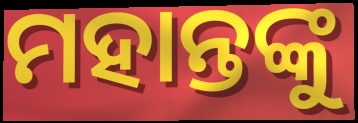
ମହାନ୍ତଙ୍କୁ